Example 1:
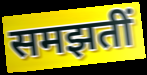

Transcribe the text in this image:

समझतीं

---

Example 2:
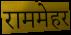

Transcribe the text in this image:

राममेहर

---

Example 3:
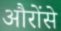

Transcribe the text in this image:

औरोंसे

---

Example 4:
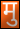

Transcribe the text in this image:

मु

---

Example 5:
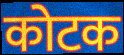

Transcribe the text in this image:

कोटक